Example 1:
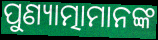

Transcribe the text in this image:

ପୁଣ୍ୟାତ୍ମାମାନଙ୍କ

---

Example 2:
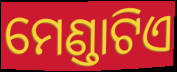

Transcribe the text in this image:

ମେଣ୍ଡାଟିଏ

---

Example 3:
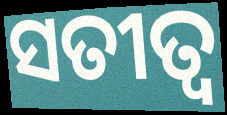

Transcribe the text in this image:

ସତୀତ୍ଵ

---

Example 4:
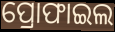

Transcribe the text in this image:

ପ୍ରୋଫାଇଲ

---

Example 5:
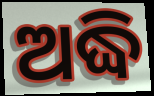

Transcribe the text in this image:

ଅଦ୍ଧି